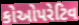
કોઓપરેટિવ